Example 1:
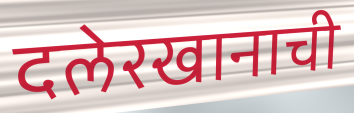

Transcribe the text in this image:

दलेरखानाची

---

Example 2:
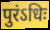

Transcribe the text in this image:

पुरंऽधिः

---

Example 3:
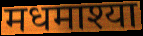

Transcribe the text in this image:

मधमाश्‍या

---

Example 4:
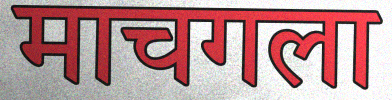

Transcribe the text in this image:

माचगला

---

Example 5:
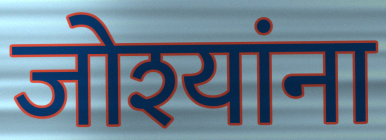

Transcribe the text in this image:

जोश्यांना